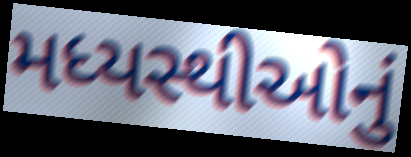
મધ્યસ્થીઓનું